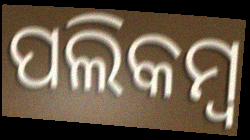
ପଲିକମ୍ବ